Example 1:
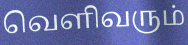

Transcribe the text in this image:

வெளிவரும்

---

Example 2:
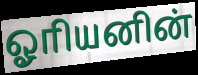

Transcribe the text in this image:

ஓரியனின்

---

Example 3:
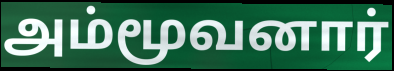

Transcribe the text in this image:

அம்மூவனார்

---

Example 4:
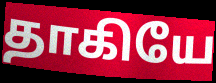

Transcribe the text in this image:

தாகியே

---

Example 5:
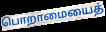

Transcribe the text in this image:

பொறாமையைத்